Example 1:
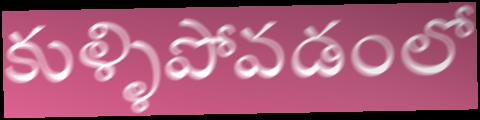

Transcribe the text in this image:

కుళ్ళిపోవడంలో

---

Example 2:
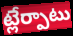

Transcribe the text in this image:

ట్లేర్పాటు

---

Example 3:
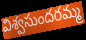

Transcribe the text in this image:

విశ్వసుందరమ్మ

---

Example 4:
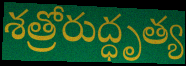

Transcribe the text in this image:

శత్రోరుద్ధృత్య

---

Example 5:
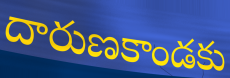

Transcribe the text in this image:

దారుణకాండకు